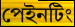
পেইনটিং